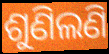
ଶୁଣିଲଣି